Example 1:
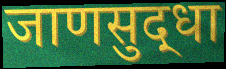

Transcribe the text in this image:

जाणसुद्धा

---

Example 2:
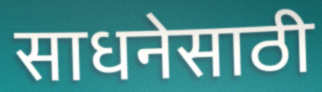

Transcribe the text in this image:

साधनेसाठी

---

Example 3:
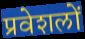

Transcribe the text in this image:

प्रवेशलों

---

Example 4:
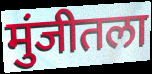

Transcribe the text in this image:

मुंजीतला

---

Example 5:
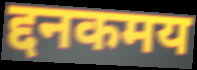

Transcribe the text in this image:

द्दनकमय